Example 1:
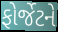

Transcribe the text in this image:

ફોર્જેટને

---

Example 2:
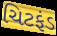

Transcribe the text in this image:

ચિટફંડ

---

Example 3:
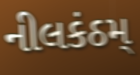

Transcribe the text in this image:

નીલકંઠમ્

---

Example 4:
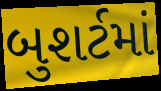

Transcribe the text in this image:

બુશર્ટમાં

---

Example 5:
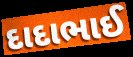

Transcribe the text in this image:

દાદાભાઈ